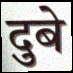
दुबे